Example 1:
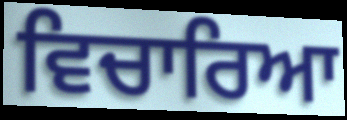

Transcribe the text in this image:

ਵਿਚਾਰਿਆ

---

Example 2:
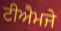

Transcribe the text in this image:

ਟੀਐਮਜੇ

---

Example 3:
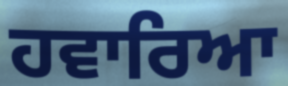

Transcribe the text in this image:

ਹਵਾਰਿਆ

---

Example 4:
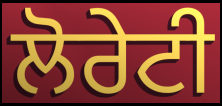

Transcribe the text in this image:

ਲੋਰੇਟੀ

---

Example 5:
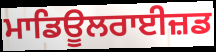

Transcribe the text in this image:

ਮਾਡਿਊਲਰਾਈਜ਼ਡ